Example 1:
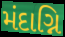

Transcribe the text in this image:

મંદાગ્નિ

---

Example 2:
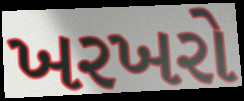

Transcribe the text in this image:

ખરખરો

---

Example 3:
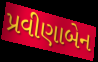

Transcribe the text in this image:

પ્રવીણાબેન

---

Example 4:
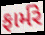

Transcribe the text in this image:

ફાર્મરે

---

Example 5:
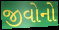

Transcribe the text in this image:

જીવોનો